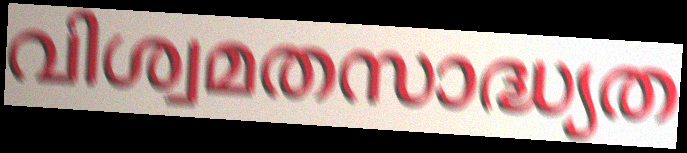
വിശ്വമതസാദ്ധ്യത